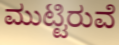
ಮುಟ್ಟಿರುವೆ